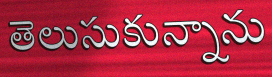
తెలుసుకున్నాను